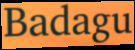
Badagu